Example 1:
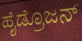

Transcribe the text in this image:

ಹೈಡ್ರೊಜನ್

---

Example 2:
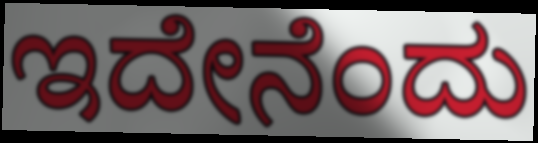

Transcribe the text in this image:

ಇದೇನೆಂದು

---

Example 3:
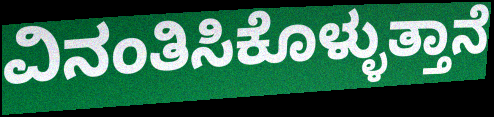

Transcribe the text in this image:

ವಿನಂತಿಸಿಕೊಳ್ಳುತ್ತಾನೆ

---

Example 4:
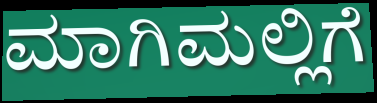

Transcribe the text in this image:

ಮಾಗಿಮಲ್ಲಿಗೆ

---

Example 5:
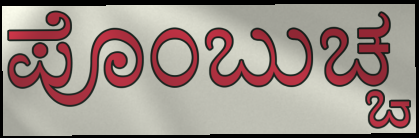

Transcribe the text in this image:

ಪೊಂಬುಚ್ಚ